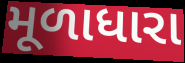
મૂળાધારા